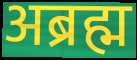
अब्रह्म